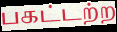
பகட்டற்ற